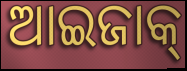
ଆଇଜାକ୍